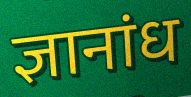
ज्ञानांध